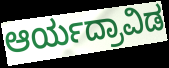
ಆರ್ಯದ್ರಾವಿಡ